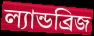
ল্যান্ডব্রিজ